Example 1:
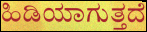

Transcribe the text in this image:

ಹಿಡಿಯಾಗುತ್ತದೆ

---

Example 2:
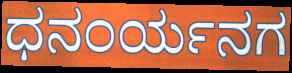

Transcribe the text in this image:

ಧನಂರ್ಯನಗ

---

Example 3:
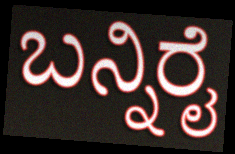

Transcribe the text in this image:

ಬನ್ನಿರೈ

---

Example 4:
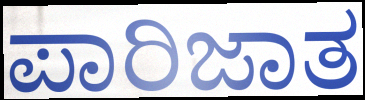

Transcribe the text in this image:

ಪಾರಿಜಾತ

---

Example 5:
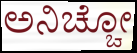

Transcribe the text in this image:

ಅನಿಚ್ಚೋ